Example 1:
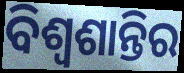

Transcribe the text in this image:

ବିଶ୍ୱଶାନ୍ତିର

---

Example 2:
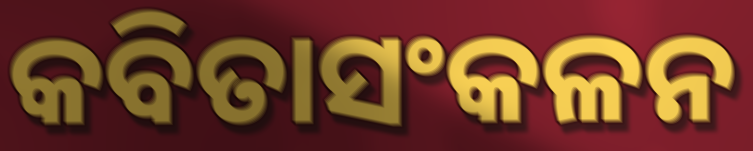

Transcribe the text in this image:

କବିତାସଂକଳନ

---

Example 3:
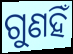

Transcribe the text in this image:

ଗୁଣହିଁ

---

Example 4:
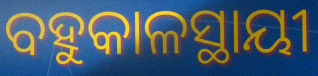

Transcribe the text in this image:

ବହୁକାଳସ୍ଥାୟୀ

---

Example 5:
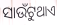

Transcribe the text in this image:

ସାଉଁଟୁଥାଏ